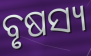
ବୃଷସ୍ୟ